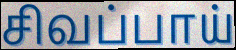
சிவப்பாய்